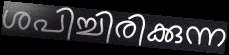
ശപിച്ചിരിക്കുന്ന